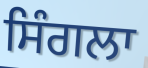
ਸਿੰਗਲਾ